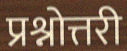
प्रश्नोत्तरी